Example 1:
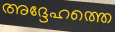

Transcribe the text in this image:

അദ്ദേഹത്തെ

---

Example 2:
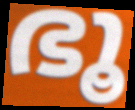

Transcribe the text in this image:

ഭൂ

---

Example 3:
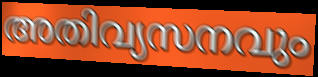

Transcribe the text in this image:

അതിവ്യസനവും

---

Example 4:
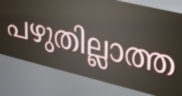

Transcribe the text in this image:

പഴുതില്ലാത്ത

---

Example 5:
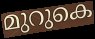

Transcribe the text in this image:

മുറുകെ